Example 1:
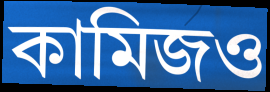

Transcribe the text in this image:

কামিজও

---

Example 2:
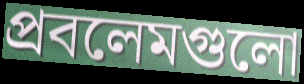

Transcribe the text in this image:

প্রবলেমগুলো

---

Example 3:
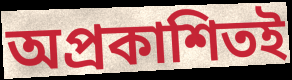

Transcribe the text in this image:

অপ্রকাশিতই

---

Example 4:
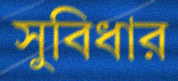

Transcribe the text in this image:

সুবিধার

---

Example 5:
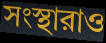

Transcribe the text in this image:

সংস্থারাও